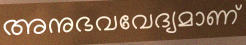
അനുഭവവേദ്യമാണ്